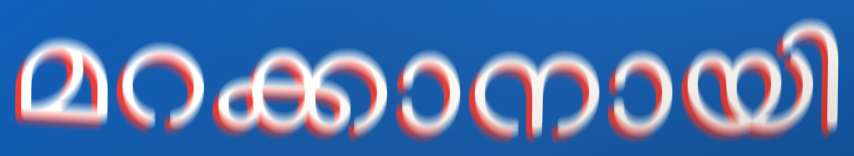
മറക്കാനായി